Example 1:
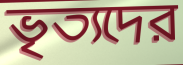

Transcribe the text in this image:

ভৃত্যদের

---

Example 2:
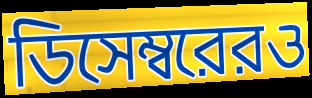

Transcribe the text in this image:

ডিসেম্বরেরও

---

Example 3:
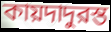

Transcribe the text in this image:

কায়দাদুরস্ত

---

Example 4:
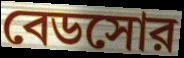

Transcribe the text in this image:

বেডসোর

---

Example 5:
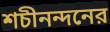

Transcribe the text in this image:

শচীনন্দনের